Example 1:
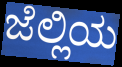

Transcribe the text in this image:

ಜೆಲ್ಲಿಯ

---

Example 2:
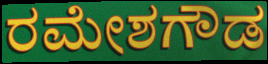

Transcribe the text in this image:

ರಮೇಶಗೌಡ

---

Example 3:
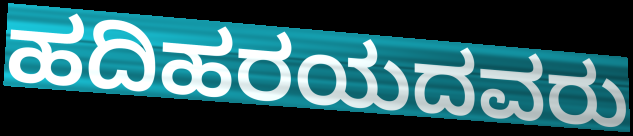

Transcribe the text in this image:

ಹದಿಹರಯದವರು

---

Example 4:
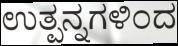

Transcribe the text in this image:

ಉತ್ಪನ್ನಗಳಿಂದ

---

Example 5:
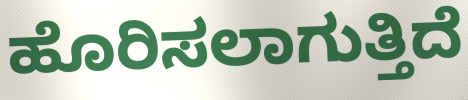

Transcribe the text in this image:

ಹೊರಿಸಲಾಗುತ್ತಿದೆ